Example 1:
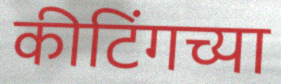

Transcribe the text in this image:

कीटिंगच्या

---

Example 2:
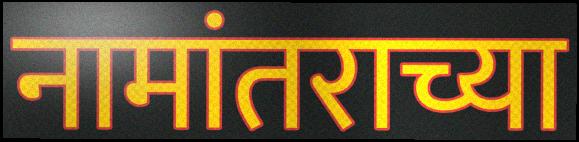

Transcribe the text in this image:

नामांतराच्या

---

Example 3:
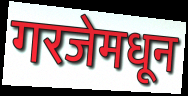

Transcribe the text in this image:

गरजेमधून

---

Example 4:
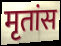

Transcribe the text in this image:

मृतांस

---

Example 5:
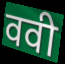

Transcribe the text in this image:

ववी